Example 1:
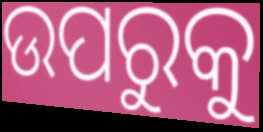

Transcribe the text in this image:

ଉପରୁକୁ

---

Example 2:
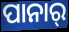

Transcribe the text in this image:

ପାନାର୍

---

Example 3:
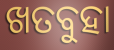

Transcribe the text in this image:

ଖତବୁହା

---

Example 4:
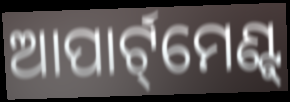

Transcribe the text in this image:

ଆପାର୍ଟ୍‌ମେଣ୍ଟ୍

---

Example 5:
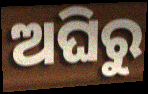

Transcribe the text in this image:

ଅଘିରୁ